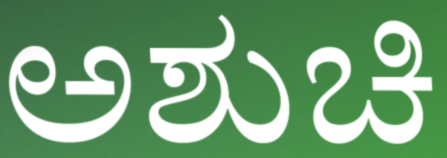
ಅಶುಚಿ